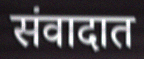
संवादात